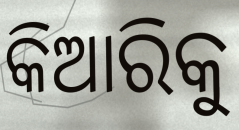
କିଆରିକୁ